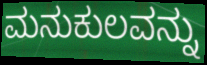
ಮನುಕುಲವನ್ನು